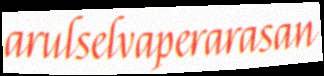
arulselvaperarasan